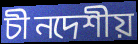
চীনদেশীয়